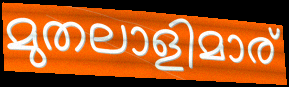
മുതലാളിമാര്